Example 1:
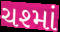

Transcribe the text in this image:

ચશ્માં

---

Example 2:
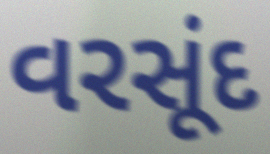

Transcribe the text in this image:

વરસૂંદ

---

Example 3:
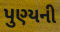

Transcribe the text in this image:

પુણ્યની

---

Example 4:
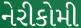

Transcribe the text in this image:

નેરીકોમી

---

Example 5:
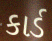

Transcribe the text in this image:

કાર્ડ